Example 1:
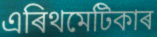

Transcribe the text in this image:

এৰিথমেটিকাৰ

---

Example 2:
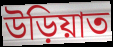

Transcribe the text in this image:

উড়িয়াত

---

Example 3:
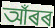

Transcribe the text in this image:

আঁৰৰ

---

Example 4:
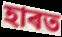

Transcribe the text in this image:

হাৰত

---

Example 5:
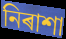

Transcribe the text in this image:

নিৰাশা